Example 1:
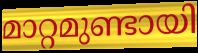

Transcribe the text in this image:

മാറ്റമുണ്ടായി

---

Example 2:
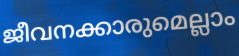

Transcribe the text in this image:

ജീവനക്കാരുമെല്ലാം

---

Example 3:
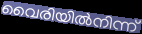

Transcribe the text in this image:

വൈരിയിൽനിന്ന്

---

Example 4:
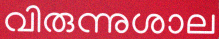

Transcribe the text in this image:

വിരുന്നുശാല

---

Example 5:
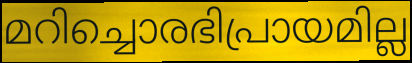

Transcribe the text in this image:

മറിച്ചൊരഭിപ്രായമില്ല